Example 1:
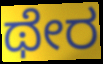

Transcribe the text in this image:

ಥೇರ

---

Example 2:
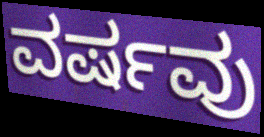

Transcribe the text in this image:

ವರ್ಷವು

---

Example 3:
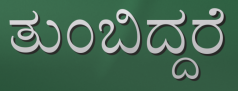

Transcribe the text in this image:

ತುಂಬಿದ್ದರೆ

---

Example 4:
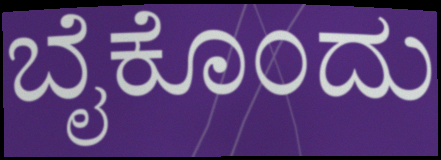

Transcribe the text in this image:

ಬೈಕೊಂದು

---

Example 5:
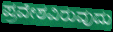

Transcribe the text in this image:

ಪ್ರವೇಶವಿರುವುದು